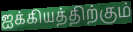
ஐக்கியத்திற்கும்